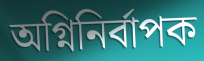
অগ্নিনিৰ্বাপক